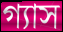
গ্যাস